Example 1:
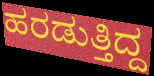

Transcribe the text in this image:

ಹರಡುತ್ತಿದ್ದ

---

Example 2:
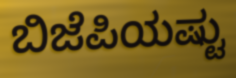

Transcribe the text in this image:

ಬಿಜೆಪಿಯಷ್ಟು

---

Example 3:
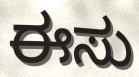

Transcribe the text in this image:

ಈಸು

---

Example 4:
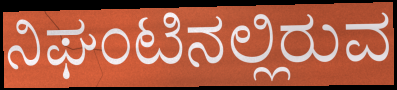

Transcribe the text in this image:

ನಿಘಂಟಿನಲ್ಲಿರುವ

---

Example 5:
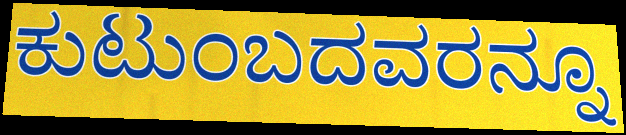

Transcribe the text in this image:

ಕುಟುಂಬದವರನ್ನೂ